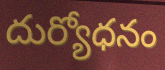
దుర్యోధనం